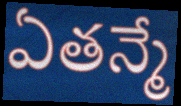
ఏతన్మే